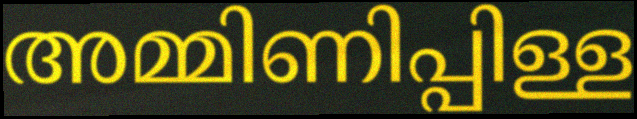
അമ്മിണിപ്പിള്ള